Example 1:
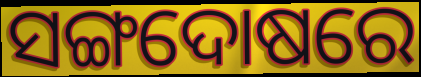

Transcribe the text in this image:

ସଙ୍ଗଦୋଷରେ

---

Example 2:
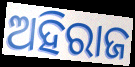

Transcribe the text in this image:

ଅହିରାଜ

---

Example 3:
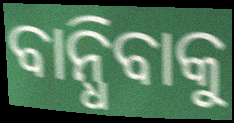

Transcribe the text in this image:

ବାନ୍ଧିବାକୁ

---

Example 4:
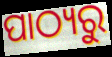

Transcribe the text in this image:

ପାଠ୍ୟରୁ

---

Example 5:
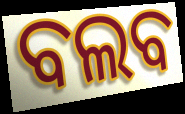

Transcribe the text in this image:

ବଲବ